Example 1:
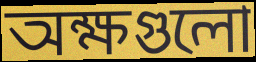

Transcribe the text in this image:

অক্ষগুলো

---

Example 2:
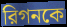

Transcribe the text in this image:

রিগনকে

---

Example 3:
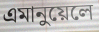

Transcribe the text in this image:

এমানুয়েলে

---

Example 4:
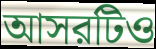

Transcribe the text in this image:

আসরটিও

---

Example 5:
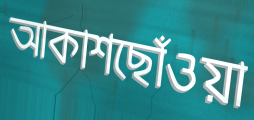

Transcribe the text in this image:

আকাশছোঁওয়া